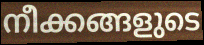
നീക്കങ്ങളുടെ